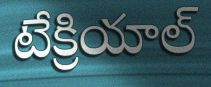
టేక్రియాల్